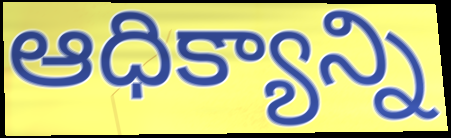
ఆధిక్యాన్ని